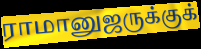
ராமானுஜருக்குக்